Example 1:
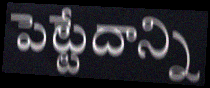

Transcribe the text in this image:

పెట్టేదాన్ని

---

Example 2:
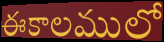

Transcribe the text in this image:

ఈకాలములో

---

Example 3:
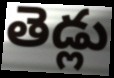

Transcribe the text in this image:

తెడ్లు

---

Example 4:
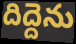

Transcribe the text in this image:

దిద్దెను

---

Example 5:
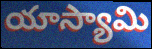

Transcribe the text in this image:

యాస్యామి